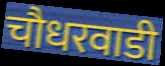
चौधरवाडी